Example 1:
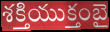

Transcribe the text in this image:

శక్తియుక్తంబై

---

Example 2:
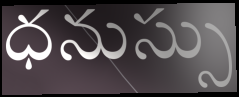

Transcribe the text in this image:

ధనుస్సు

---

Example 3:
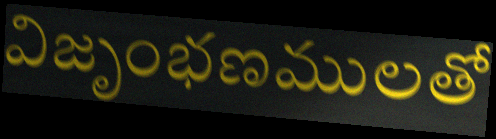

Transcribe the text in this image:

విజృంభణములతో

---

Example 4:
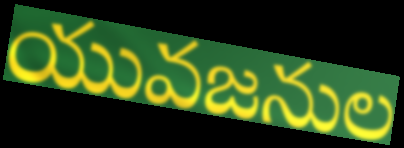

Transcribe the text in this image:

యువజనుల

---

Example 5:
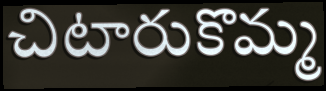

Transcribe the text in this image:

చిటారుకొమ్మ